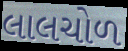
લાલચોળ